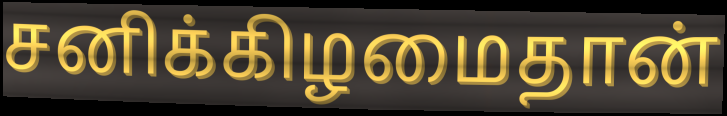
சனிக்கிழமைதான்